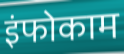
इंफोकाम